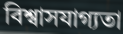
বিশ্বাসযাগ্যতা